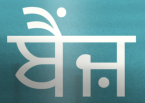
ਬੈਂਜ਼